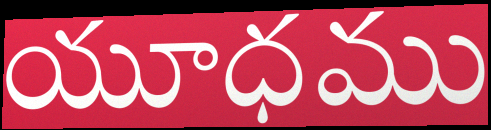
యూధము